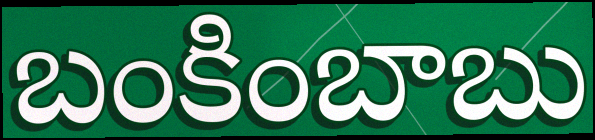
బంకింబాబు